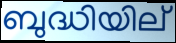
ബുദ്ധിയില്